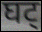
घट्